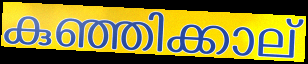
കുഞ്ഞിക്കാല്